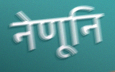
नेणूनि